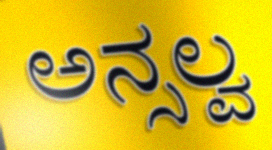
ಅನ್ಸಲ್ವ